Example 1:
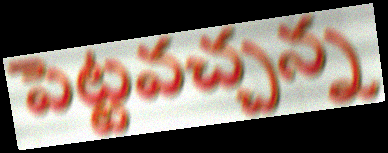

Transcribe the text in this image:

పెట్టవచ్చన్న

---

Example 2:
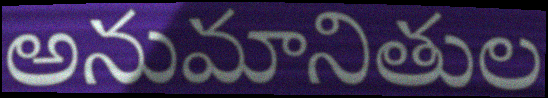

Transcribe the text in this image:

అనుమానితుల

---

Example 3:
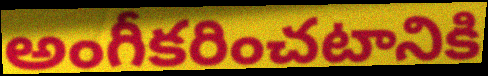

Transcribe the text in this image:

అంగీకరించటానికి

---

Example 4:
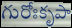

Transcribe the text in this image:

గురోఃకృపా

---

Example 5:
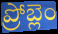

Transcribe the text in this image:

ప్రోబ్లెం